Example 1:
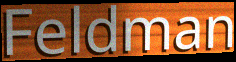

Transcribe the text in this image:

Feldman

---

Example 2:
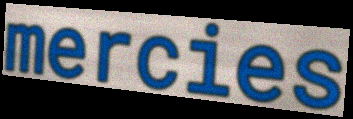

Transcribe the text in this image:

mercies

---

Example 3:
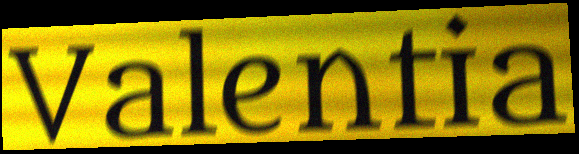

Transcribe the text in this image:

Valentia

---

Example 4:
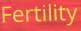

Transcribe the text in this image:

Fertility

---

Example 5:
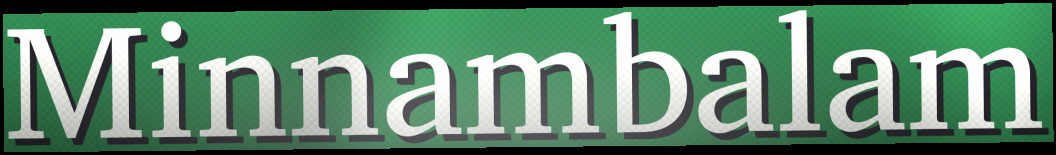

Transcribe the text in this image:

Minnambalam